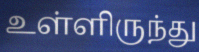
உள்ளிருந்து